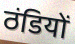
ठंडियों